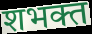
शभक्त